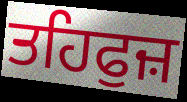
ਤਹਿਫੁਜ਼